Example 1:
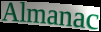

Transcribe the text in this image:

Almanac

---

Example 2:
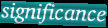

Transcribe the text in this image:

significance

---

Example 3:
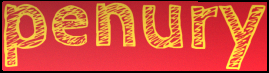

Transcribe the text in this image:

penury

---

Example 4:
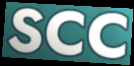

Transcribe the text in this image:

SCC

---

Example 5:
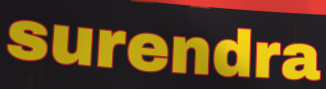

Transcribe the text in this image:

surendra